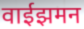
वाईझमन